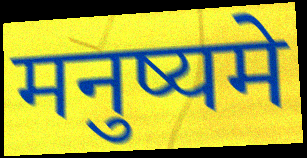
मनुष्यमे